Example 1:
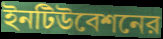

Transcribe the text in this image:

ইনটিউবেশনের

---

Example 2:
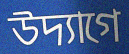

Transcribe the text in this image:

উদ্যাগে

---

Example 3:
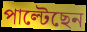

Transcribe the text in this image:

পাল্টেছেন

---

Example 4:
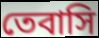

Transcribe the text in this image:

তেবাসি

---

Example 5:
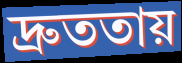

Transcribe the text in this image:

দ্রুততায়